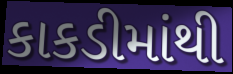
કાકડીમાંથી